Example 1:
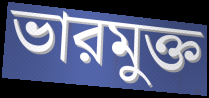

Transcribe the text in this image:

ভারমুক্ত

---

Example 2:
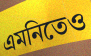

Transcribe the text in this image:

এমনিতেও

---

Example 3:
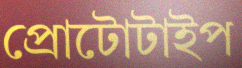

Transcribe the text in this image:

প্রোটোটাইপ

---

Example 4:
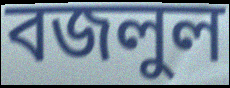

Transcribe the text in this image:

বজলুল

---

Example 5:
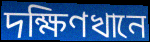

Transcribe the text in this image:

দক্ষিণখানে